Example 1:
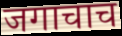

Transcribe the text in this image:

जगाचाच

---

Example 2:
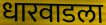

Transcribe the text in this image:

धारवाडला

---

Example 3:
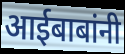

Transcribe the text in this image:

आईबाबांनी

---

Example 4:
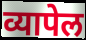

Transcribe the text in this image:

व्यापेल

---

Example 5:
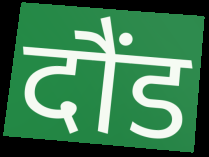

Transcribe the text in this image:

दौंड